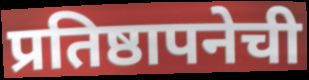
प्रतिष्ठापनेची